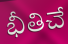
భీతిచే